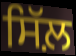
ਸਿੱਲ਼